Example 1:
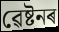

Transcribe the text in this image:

ৱেষ্টনৰ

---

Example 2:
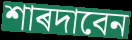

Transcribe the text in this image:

শাৰদাবেন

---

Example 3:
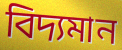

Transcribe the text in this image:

বিদ্যমান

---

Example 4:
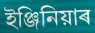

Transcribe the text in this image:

ইঞ্জিনিয়াৰ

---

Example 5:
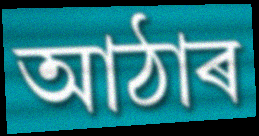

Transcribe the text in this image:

আঠাৰ